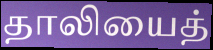
தாலியைத்